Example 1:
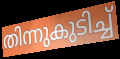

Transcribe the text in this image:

തിന്നുകുടിച്ച്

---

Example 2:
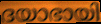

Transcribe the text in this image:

ദയാഭായി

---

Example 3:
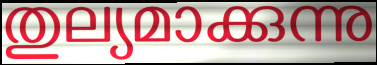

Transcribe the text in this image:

തുല്യമാക്കുന്നു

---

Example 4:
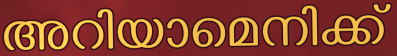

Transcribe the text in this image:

അറിയാമെനിക്ക്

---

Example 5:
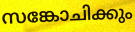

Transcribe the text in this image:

സങ്കോചിക്കും